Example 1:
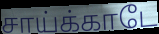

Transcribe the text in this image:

சாய்க்காடே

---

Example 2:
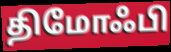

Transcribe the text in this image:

திமோஃபி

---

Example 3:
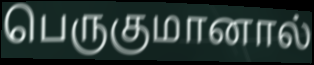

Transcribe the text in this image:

பெருகுமானால்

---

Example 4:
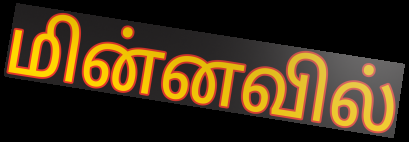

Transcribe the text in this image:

மின்னவில்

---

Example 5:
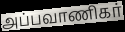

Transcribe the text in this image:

அப்பவாணிகர்